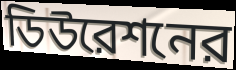
ডিউরেশনের